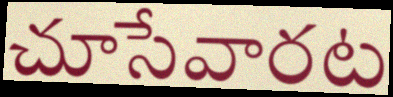
చూసేవారట